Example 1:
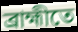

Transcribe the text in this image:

ব্রাহ্মীতে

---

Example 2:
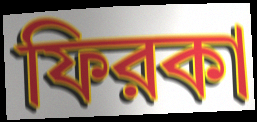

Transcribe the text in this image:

ফিরকা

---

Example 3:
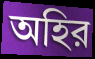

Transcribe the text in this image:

অহির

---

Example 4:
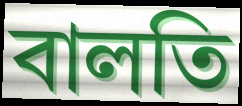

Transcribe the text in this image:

বালতি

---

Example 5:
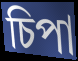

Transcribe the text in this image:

চিপা